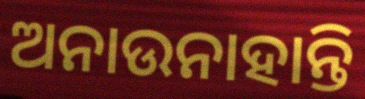
ଅନାଉନାହାନ୍ତି